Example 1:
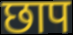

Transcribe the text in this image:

छाप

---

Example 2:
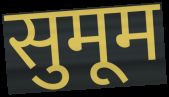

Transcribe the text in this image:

सुमूम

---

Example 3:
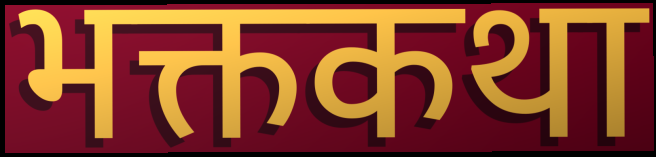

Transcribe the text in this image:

भक्तकथा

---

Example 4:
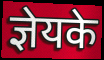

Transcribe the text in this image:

ज्ञेयके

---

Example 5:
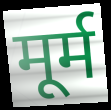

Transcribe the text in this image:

मूर्म